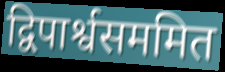
द्विपार्श्वसममित